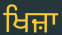
ਖਿਜ਼ਾ